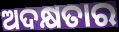
ଅଦକ୍ଷତାର